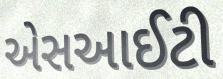
એસઆઈટી